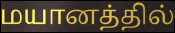
மயானத்தில்